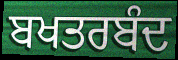
ਬਖਤਰਬੰਦ